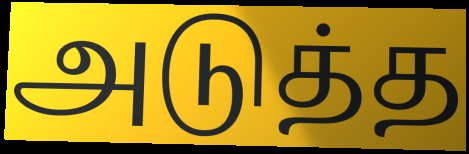
அடுத்த